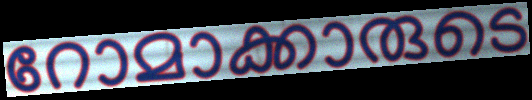
റോമാക്കാരുടെ